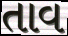
તાવ